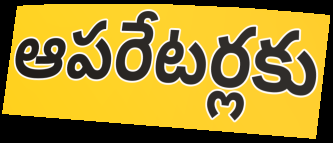
ఆపరేటర్లకు